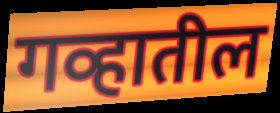
गव्हातील